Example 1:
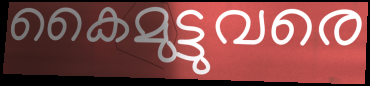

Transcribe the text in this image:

കൈമുട്ടുവരെ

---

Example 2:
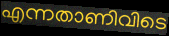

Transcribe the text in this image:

എന്നതാണിവിടെ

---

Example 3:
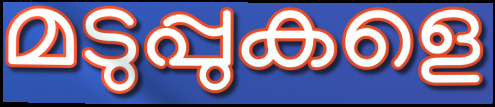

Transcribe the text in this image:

മടുപ്പുകളെ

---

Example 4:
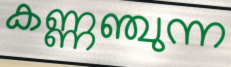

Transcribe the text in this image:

കണ്ണഞ്ചുന്ന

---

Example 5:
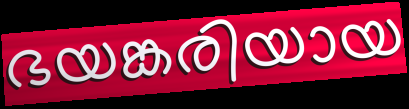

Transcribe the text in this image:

ഭയങ്കരിയായ